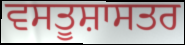
ਵਸਤੂਸ਼ਾਸਤਰ